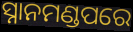
ସ୍ନାନମଣ୍ଡପରେ